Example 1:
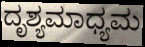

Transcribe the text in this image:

ದೃಶ್ಯಮಾಧ್ಯಮ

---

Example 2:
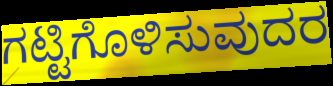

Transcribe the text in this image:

ಗಟ್ಟಿಗೊಳಿಸುವುದರ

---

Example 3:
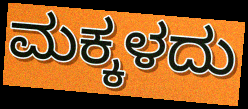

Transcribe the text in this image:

ಮಕ್ಕಳದು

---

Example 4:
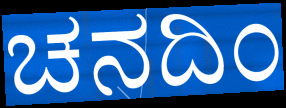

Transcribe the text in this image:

ಚನದಿಂ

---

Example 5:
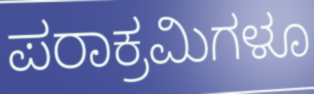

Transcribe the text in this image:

ಪರಾಕ್ರಮಿಗಳೂ